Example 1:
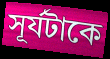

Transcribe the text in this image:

সূর্যটাকে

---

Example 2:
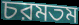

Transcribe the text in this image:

চরমতম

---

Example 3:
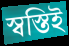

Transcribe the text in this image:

স্বস্তিই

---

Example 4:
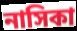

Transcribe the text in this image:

নাসিকা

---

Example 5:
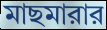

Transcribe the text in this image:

মাছমারার